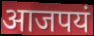
आजपयं